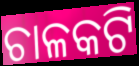
ଚାଳକଟି